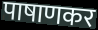
पाषाणकर